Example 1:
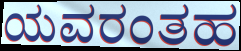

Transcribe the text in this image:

ಯವರಂತಹ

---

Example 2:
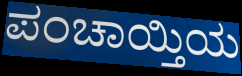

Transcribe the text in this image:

ಪಂಚಾಯ್ತಿಯ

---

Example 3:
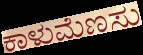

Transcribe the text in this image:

ಕಾಳುಮೆಣಸು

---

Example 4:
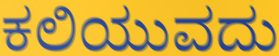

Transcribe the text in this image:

ಕಲಿಯುವದು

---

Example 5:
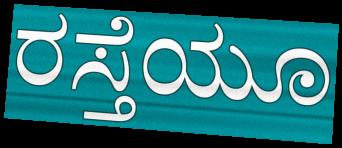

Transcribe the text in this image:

ರಸ್ತೆಯೂ